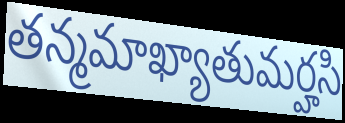
తన్మమాఖ్యాతుమర్హసి